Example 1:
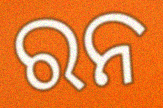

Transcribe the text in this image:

ରନ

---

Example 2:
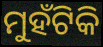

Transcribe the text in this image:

ମୁହଁଟିକି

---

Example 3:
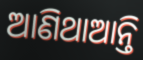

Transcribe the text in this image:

ଆଣିଥାଆନ୍ତି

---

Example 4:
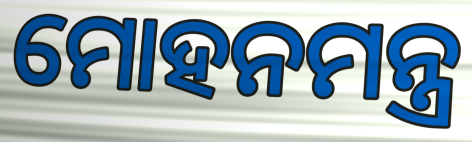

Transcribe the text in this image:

ମୋହନମନ୍ତ୍ର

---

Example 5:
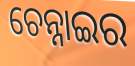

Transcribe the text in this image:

ଚେନ୍ନାଇର